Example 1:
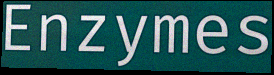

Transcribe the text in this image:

Enzymes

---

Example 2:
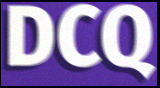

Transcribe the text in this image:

DCQ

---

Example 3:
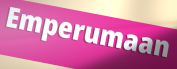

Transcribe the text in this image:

Emperumaan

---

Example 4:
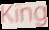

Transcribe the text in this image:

King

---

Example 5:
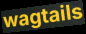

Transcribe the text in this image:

wagtails